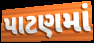
પાટણમાં